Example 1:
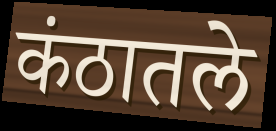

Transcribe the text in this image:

कंठातले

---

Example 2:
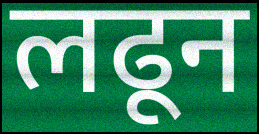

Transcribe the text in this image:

लढून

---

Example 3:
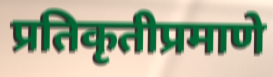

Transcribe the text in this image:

प्रतिकृतीप्रमाणे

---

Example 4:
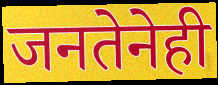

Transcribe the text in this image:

जनतेनेही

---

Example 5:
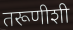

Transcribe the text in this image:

तरूणीशी